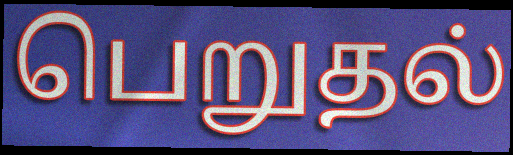
பெறுதல்